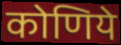
कोणिये